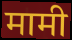
मामी